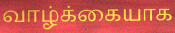
வாழ்க்கையாக